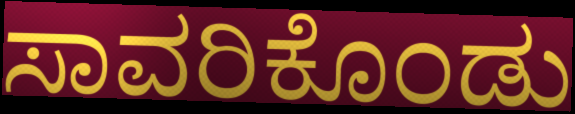
ಸಾವರಿಕೊಂಡು